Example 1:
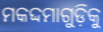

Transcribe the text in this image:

ମକଦ୍ଦମାଗୁଡ଼ିକୁ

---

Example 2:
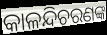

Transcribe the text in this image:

କାଳନ୍ଦିଚରଣଙ୍କ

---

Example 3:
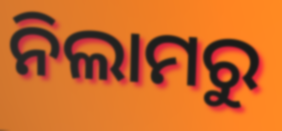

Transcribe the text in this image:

ନିଲାମରୁ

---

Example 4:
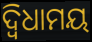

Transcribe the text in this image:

ଦ୍ୱିଧାମୟ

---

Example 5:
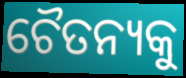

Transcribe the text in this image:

ଚୈତନ୍ୟକୁ